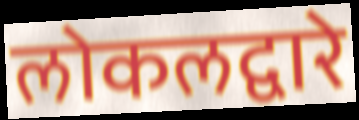
लोकलद्वारे